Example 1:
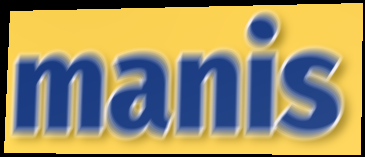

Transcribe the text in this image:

manis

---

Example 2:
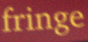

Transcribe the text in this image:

fringe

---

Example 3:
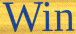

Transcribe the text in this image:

Win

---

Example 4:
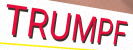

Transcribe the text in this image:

TRUMPF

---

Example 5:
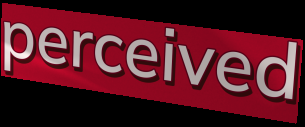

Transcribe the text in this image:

perceived